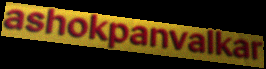
ashokpanvalkar